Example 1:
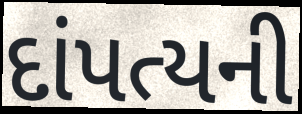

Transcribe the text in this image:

દાંપત્યની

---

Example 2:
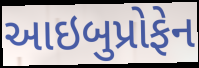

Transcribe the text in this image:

આઇબુપ્રોફેન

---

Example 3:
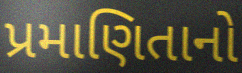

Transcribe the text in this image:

પ્રમાણિતાનો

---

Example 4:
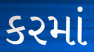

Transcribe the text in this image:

કરમાં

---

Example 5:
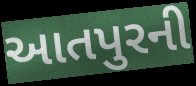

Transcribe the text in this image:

આતપુરની